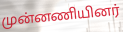
முன்னணியினர்